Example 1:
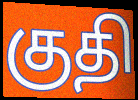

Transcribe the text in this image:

குதி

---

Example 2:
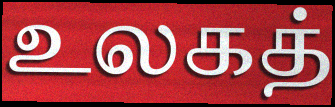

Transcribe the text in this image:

உலகத்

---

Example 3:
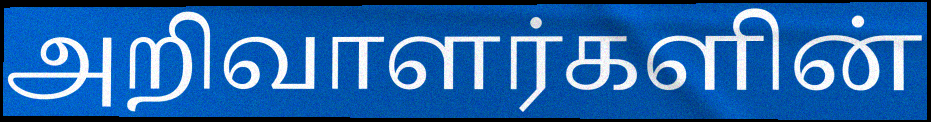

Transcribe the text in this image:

அறிவாளர்களின்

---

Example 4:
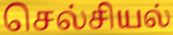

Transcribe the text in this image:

செல்சியல்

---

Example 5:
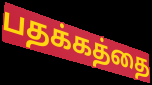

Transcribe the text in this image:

பதக்கத்தை